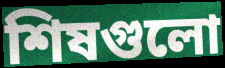
শিষগুলো